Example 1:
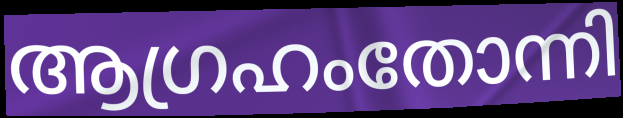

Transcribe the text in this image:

ആഗ്രഹംതോന്നി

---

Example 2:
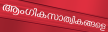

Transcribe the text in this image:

ആംഗികസാത്വികങ്ങളെ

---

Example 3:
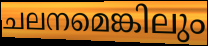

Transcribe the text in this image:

ചലനമെങ്കിലും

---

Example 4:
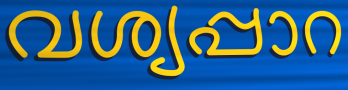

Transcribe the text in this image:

വശ്യപ്പാറ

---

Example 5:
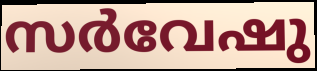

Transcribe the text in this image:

സർവേഷു